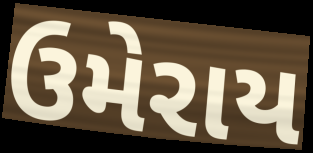
ઉમેરાય